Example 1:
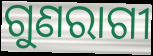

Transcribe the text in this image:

ଗୁଣରାଗୀ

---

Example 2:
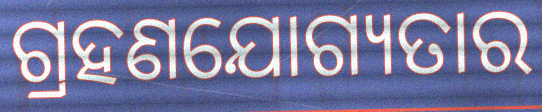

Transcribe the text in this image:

ଗ୍ରହଣଯୋଗ୍ୟତାର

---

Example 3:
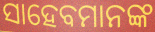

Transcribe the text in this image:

ସାହେବମାନଙ୍କ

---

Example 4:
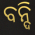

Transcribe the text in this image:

ବନ୍ଦି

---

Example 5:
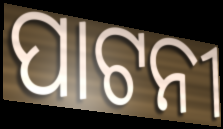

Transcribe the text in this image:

ପାଟନୀ